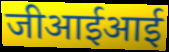
जीआईआई